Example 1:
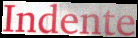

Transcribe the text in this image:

Indente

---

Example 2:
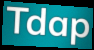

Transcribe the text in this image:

Tdap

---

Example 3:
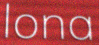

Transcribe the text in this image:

lona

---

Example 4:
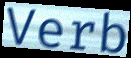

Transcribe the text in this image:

Verb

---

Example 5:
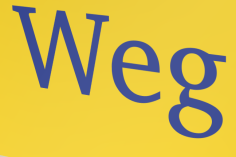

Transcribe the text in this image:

Weg